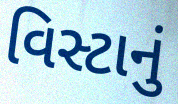
વિસ્ટાનું